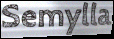
Semylla